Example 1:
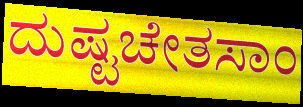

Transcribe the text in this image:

ದುಷ್ಟಚೇತಸಾಂ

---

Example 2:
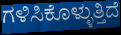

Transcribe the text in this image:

ಗಳಿಸಿಕೊಳ್ಳುತ್ತಿದೆ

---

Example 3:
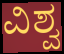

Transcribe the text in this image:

ವಿಶ್ವ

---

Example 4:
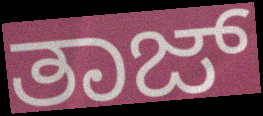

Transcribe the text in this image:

ತಾಜ್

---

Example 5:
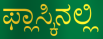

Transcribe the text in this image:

ಫ್ಲಾಸ್ಕಿನಲ್ಲಿ